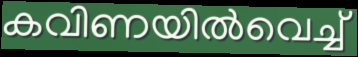
കവിണയിൽവെച്ച്